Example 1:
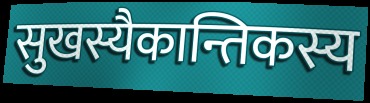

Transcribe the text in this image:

सुखस्यैकान्तिकस्य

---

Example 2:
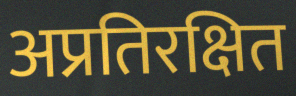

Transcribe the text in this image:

अप्रतिरक्षित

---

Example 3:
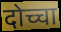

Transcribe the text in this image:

दोच्चा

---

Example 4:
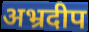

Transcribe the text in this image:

अभ्रदीप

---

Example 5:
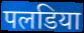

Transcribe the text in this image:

पलडिया